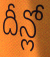
దీన్లో